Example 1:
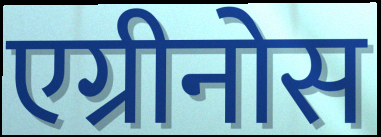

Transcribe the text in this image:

एग्रीनोस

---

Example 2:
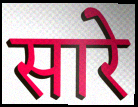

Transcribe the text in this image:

सारे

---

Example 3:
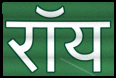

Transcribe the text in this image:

रॉय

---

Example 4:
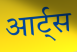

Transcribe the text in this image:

आर्ट्स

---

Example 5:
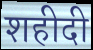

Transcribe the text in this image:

शहीदी